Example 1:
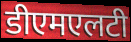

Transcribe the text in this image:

डीएमएलटी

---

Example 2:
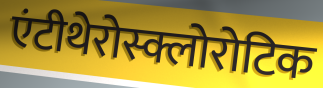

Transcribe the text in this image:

एंटीथेरोस्क्लोरोटिक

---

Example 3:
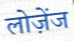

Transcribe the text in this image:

लोज़ेंज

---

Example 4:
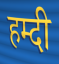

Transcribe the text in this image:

हम्दी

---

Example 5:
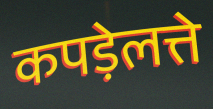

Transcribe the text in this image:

कपड़ेलत्ते